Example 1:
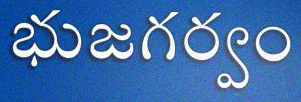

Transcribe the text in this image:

భుజగర్వం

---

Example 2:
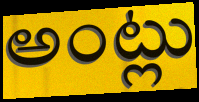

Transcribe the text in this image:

అంట్లు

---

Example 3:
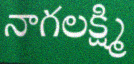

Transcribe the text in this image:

నాగలక్ష్మి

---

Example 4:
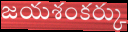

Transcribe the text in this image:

జయశంకర్కు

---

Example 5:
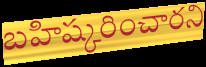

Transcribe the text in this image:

బహిష్కరించారని